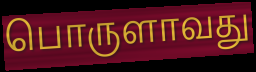
பொருளாவது